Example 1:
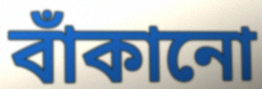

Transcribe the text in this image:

বাঁকানো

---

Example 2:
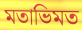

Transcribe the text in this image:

মতাভিমত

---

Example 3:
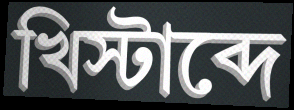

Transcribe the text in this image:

খিস্টাব্দে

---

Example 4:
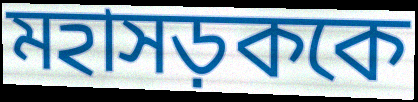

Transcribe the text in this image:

মহাসড়ককে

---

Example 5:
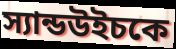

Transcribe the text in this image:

স্যান্ডউইচকে